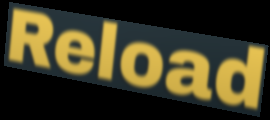
Reload